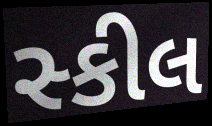
સ્કીલ